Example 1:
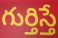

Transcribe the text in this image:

గుర్తిస్తే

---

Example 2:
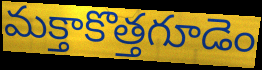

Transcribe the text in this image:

మక్తాకొత్తగూడెం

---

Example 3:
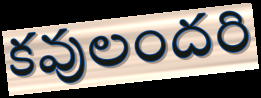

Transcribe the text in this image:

కవులందరి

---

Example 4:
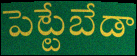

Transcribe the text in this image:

పెట్టేబేడా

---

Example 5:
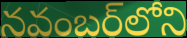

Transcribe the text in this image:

నవంబర్‌లోని